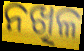
ନଖିଳ